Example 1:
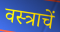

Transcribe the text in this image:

वस्त्राचें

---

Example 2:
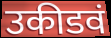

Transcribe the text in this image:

उकीडवं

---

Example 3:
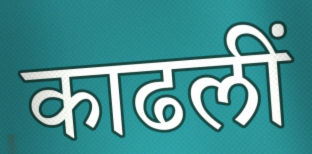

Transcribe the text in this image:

काढलीं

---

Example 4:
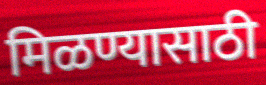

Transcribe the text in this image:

मिळण्यासाठी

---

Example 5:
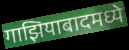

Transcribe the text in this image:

गाझियाबादमध्ये